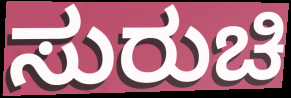
ಸುರುಚಿ